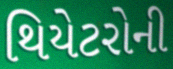
થિયેટરોની